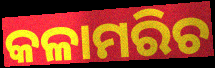
କଳାମରିଚ